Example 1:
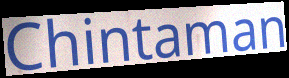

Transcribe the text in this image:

Chintaman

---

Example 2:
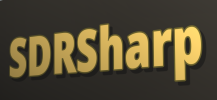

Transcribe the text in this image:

SDRSharp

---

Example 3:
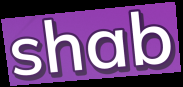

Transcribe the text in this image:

shab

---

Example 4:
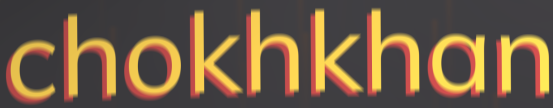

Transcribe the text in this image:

chokhkhan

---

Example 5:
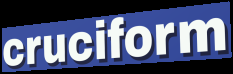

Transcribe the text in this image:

cruciform